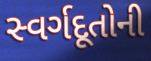
સ્વર્ગદૂતોની